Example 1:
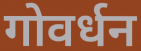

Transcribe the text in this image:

गोवर्धन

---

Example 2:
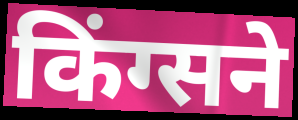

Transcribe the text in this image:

किंग्सने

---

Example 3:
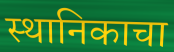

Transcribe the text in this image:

स्थानिकाचा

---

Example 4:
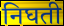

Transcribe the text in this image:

निघती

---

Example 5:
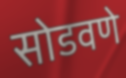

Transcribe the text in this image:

सोडवणे